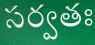
సర్వతః